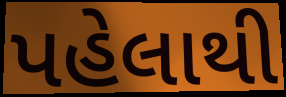
પહેલાથી